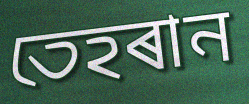
তেহৰান